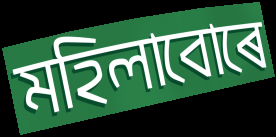
মহিলাবোৰে